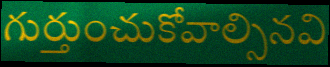
గుర్తుంచుకోవాల్సినవి